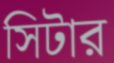
সিটার